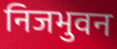
निजभुवन